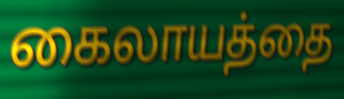
கைலாயத்தை